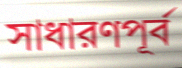
সাধারণপূর্ব